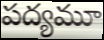
పద్యమూ